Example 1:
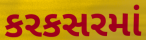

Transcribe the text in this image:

કરકસરમાં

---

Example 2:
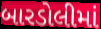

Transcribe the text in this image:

બારડોલીમાં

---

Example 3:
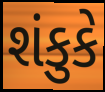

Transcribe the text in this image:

શંકુકે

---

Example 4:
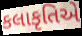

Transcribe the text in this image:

કલાકૃતિએ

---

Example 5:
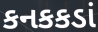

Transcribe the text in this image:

કનકકડાં